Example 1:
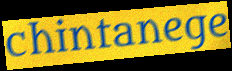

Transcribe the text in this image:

chintanege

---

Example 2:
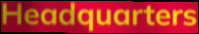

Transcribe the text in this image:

Headquarters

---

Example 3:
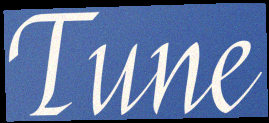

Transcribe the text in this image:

Tune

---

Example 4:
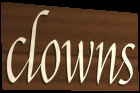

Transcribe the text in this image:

clowns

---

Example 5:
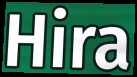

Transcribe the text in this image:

Hira